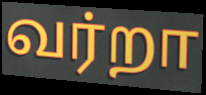
வர்றா